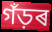
গঁড়ৰ